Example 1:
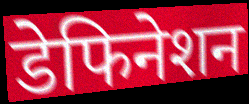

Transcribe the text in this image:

डेफिनेशन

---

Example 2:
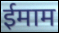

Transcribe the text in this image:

ईमाम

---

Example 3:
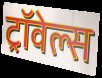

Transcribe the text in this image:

ट्रॉवेल्स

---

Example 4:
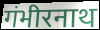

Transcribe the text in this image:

गंभीरनाथ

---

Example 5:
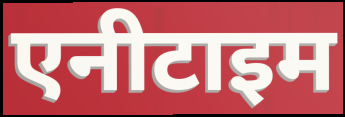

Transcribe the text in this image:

एनीटाइम